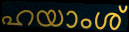
ഹയാംശ്